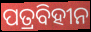
ପତ୍ରବିହୀନ